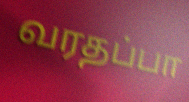
வரதப்பா